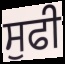
ਸੁਫੀ